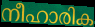
നീഹാരിക